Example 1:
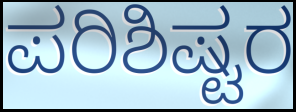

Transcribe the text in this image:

ಪರಿಶಿಷ್ಟರ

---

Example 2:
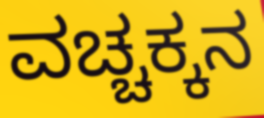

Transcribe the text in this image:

ವಚ್ಚಕ್ಕನ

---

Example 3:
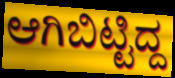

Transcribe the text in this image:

ಆಗಿಬಿಟ್ಟಿದ್ದ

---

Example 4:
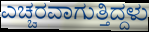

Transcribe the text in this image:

ಎಚ್ಚರವಾಗುತ್ತಿದ್ದಳು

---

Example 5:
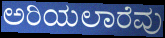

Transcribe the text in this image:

ಅರಿಯಲಾರೆವು